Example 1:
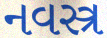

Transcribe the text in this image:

નવસ્ત્ર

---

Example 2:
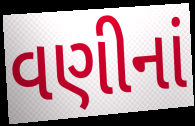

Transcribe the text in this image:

વણીનાં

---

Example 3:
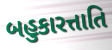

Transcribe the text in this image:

બહુકારત્તાતિ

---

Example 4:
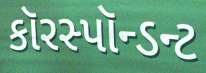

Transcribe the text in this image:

કૉરસ્પૉન્ડન્ટ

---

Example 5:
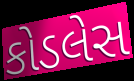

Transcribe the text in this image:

કોડલેસ